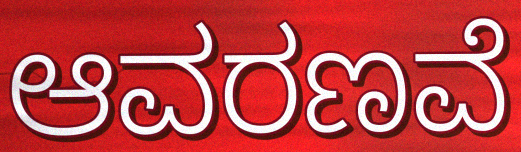
ಆವರಣವೆ